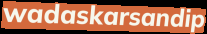
wadaskarsandip